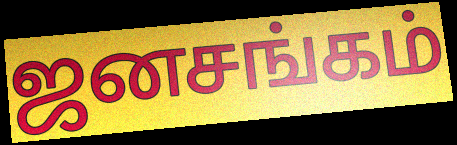
ஜனசங்கம்